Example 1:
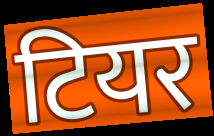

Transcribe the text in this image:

टियर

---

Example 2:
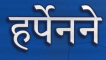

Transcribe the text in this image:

हर्पेनने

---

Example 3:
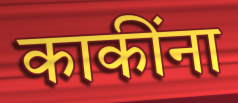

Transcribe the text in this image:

काकींना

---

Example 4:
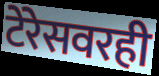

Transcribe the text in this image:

टेरेसवरही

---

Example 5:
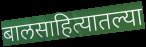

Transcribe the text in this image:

बालसाहित्यातल्या